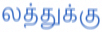
லத்துக்கு